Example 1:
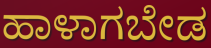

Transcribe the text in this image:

ಹಾಳಾಗಬೇಡ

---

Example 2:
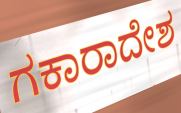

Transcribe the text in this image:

ಗಕಾರಾದೇಶ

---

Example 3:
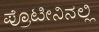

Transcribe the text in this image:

ಪ್ರೊಟೀನಿನಲ್ಲಿ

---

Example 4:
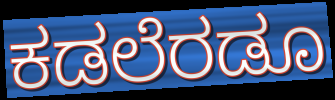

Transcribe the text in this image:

ಕಡಲೆರಡೂ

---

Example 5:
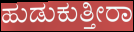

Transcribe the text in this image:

ಹುಡುಕುತ್ತೀರಾ